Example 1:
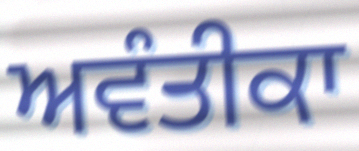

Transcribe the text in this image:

ਅਵੰਤੀਕਾ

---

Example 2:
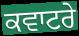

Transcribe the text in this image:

ਕਵਾਟਰੇ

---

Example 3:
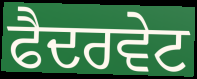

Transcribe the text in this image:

ਫੈਦਰਵੇਟ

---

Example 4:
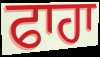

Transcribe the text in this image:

ਫਾਹਾ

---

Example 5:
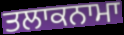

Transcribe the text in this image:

ਤਲਾਕਨਾਮਾ